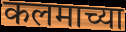
कलमाच्या